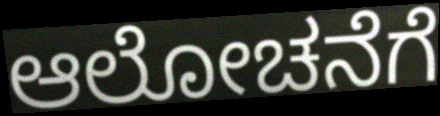
ಆಲೋಚನೆಗೆ